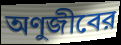
অণুজীবের